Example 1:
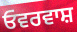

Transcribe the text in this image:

ਓਵਰਵਾਸ਼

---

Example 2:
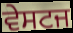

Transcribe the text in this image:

ਵੇਸਟਜ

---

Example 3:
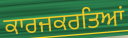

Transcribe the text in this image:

ਕਾਰਜਕਰਤਿਆਂ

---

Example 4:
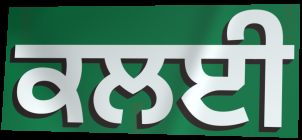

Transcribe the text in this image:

ਕਲਈ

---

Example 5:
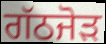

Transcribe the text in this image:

ਗੱਠਜੋੜ